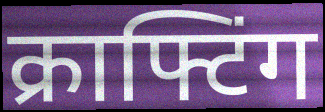
क्राफ्टिंग